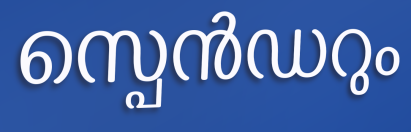
സ്പെൻഡറും